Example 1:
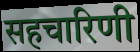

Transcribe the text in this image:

सहचारिणी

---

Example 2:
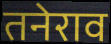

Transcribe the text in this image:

तनेराव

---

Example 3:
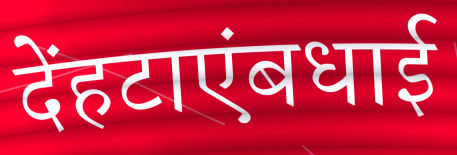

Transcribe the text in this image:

देंहटाएंबधाई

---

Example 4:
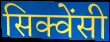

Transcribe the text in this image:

सिक्वेंसी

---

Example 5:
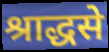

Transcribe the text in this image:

श्राद्धसे